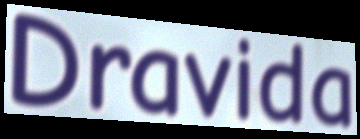
Dravida